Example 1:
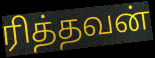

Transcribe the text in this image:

ரித்தவன்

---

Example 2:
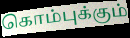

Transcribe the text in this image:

கொம்புக்கும்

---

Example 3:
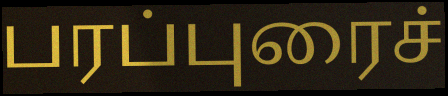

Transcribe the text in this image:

பரப்புரைச்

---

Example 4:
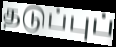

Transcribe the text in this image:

தடுப்புப்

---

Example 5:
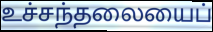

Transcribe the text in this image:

உச்சந்தலையைப்